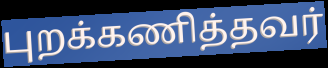
புறக்கணித்தவர்